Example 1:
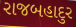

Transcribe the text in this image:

રાજબહાદુર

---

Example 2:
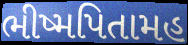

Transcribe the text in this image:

ભીષ્મપિતામહ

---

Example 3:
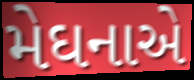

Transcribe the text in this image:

મેઘનાએ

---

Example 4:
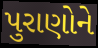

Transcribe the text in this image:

પુરાણોને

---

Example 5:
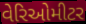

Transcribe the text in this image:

વેરિઓમીટર